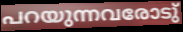
പറയുന്നവരോടു്